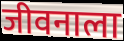
जीवनाला